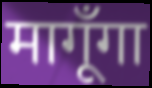
मागूँगा